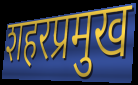
शहरप्रमुख